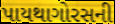
પાયથાગોરસની